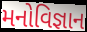
મનોવિજ્ઞાન